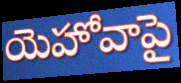
యెహోవాపై